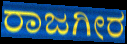
ರಾಜಗೀರ